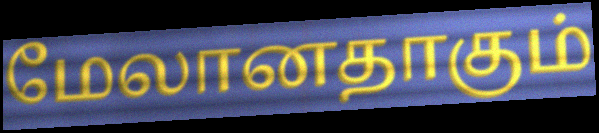
மேலானதாகும்